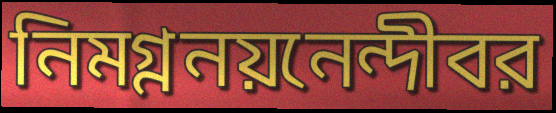
নিমগ্ননয়নেন্দীবর